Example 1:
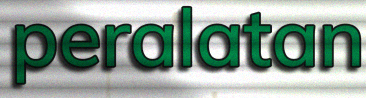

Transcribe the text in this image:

peralatan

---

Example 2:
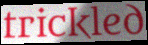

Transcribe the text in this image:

trickled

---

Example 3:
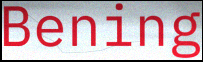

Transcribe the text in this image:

Bening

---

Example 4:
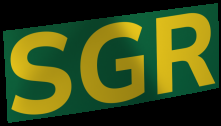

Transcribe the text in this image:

SGR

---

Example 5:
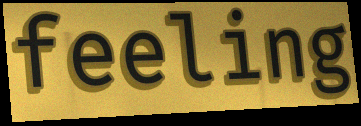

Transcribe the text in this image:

feeling